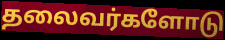
தலைவர்களோடு